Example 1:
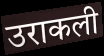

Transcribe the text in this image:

उराकली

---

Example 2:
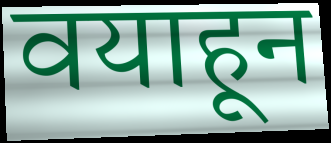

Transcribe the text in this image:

वयाहून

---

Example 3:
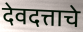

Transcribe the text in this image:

देवदत्ताचे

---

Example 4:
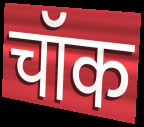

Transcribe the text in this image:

चॉक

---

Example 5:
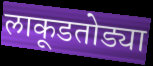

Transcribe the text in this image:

लाकूडतोड्या